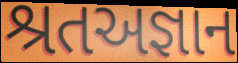
શ્રતઅજ્ઞાન